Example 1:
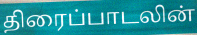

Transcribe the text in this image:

திரைப்பாடலின்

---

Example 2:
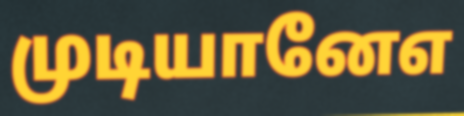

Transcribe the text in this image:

முடியானேஎ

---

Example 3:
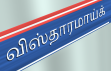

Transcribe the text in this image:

விஸ்தாரமாய்க்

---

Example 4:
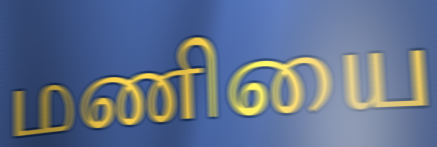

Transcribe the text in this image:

மணியை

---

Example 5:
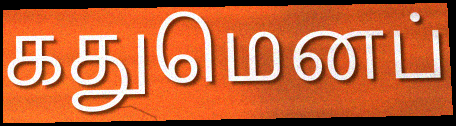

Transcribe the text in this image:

கதுமெனப்